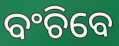
ବଂଚିବେ